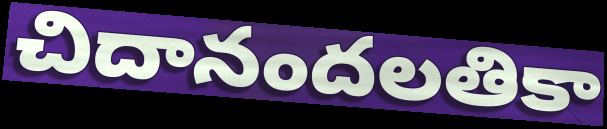
చిదానందలతికా